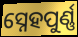
ସ୍ନେହପୁର୍ଣ୍ଣ